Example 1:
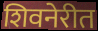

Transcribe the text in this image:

शिवनेरीत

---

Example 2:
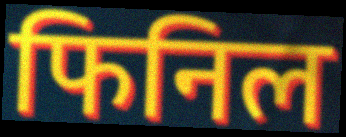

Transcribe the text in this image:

फिनिल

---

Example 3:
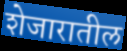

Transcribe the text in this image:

शेजारातील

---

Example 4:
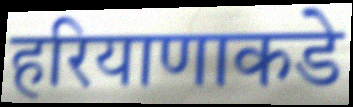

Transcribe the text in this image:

हरियाणाकडे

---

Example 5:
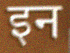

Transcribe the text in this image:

इन